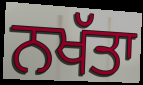
ਨਖੱਤਾ